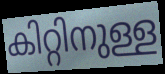
കിറ്റിനുള്ള